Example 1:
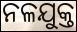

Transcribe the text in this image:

ନଳଯୁକ୍ତ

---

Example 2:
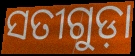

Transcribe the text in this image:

ସତୀଗୁଡ଼ା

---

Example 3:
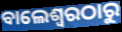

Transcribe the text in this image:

ବାଲେଶ୍ବରଠାରୁ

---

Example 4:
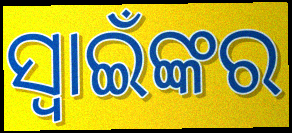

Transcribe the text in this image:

ସ୍ଵାଇଁଙ୍କର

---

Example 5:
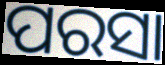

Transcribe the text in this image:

ପରସା